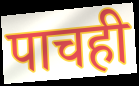
पाचही